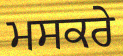
ਮਸਕਰੇ